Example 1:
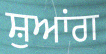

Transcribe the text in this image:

ਸ਼ੁਆਂਗ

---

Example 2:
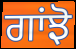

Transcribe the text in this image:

ਗਾਂਝੋ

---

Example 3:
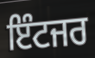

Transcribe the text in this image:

ਇੰਟਜਰ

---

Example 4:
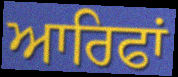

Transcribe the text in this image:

ਆਰਿਫਾਂ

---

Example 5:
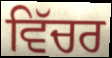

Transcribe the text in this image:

ਵਿੱਚਰ